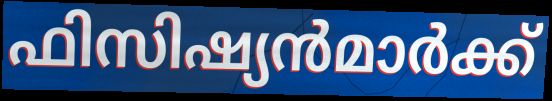
ഫിസിഷ്യൻമാർക്ക്